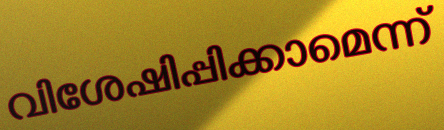
വിശേഷിപ്പിക്കാമെന്ന്